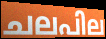
ചലപില